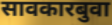
सावकारबुवा